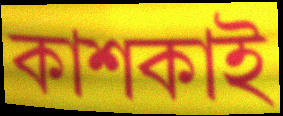
কাশকাই